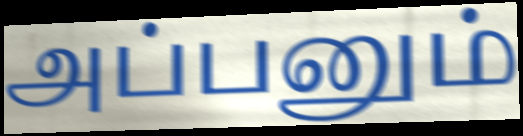
அப்பனும்